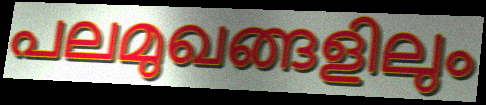
പലമുഖങ്ങളിലും